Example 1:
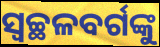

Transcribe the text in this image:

ସ୍ବଚ୍ଛଳବର୍ଗଙ୍କୁ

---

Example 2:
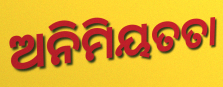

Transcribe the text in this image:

ଅନିମିୟତତା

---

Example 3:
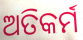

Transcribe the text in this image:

ଅତିକର୍ମ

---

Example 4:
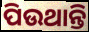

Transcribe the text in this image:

ପିଉଥାନ୍ତି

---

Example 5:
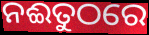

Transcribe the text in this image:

ନଈତୁଠରେ